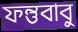
ফন্তুবাবু